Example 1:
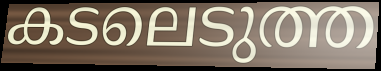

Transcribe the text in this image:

കടലെടുത്ത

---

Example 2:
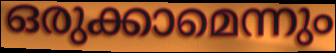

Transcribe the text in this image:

ഒരുക്കാമെന്നും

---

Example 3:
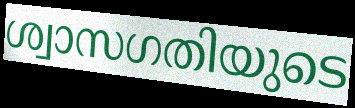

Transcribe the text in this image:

ശ്വാസഗതിയുടെ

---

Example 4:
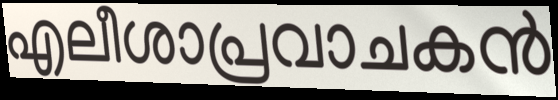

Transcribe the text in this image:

എലീശാപ്രവാചകൻ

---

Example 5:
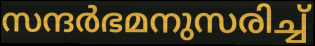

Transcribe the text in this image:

സന്ദർഭമനുസരിച്ച്